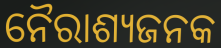
ନୈରାଶ୍ୟଜନକ